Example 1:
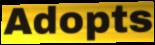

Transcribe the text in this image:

Adopts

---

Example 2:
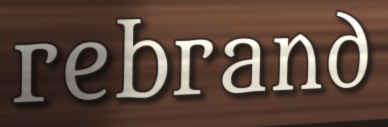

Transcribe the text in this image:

rebrand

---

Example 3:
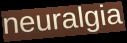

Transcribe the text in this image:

neuralgia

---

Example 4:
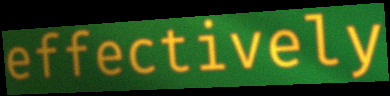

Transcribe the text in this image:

effectively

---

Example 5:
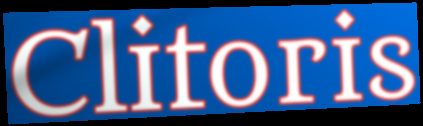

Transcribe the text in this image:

Clitoris